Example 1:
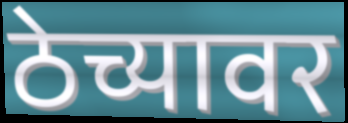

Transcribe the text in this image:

ठेच्यावर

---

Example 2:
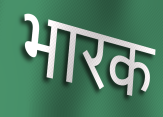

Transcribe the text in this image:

भारक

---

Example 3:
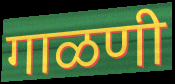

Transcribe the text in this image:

गाळणी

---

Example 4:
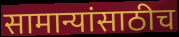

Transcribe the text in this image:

सामान्यांसाठीच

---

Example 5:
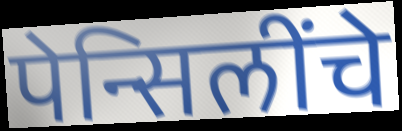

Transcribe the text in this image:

पेन्सिलींचे